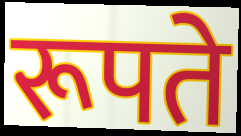
रूपते